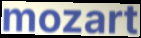
mozart